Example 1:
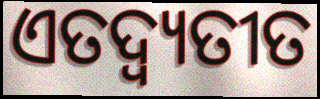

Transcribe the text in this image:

ଏତଦ୍ବ୍ୟତୀତ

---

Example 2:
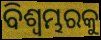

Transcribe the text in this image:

ବିଶ୍ୱମ୍ଭରକୁ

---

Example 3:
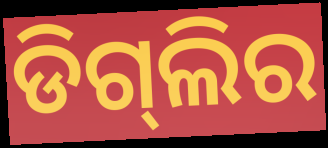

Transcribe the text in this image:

ଡିଗ୍‌ଲିର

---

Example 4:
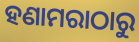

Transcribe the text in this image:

ହଣାମରାଠାରୁ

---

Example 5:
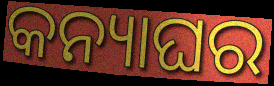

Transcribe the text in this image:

କନ୍ୟାଘର